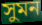
সুমন